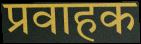
प्रवाहक